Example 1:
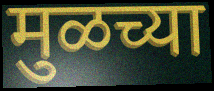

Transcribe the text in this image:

मुळच्या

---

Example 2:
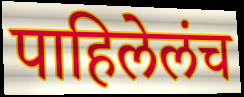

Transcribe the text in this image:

पाहिलेलंच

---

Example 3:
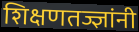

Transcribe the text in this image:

शिक्षणतज्ज्ञांनी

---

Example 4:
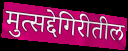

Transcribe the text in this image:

मुत्सद्देगिरीतील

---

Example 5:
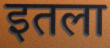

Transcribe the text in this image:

इतला